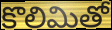
కొలిమితో